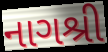
નાગશ્રી